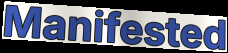
Manifested